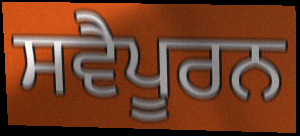
ਸਵੈਪੂਰਨ